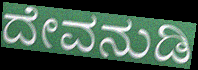
ದೇವನುಡಿ